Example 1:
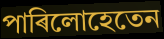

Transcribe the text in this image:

পাৰিলোহেতেন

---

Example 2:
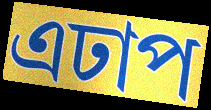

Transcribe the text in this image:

এঢাপ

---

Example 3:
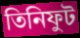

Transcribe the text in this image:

তিনিফুট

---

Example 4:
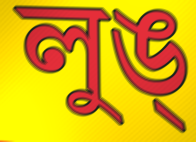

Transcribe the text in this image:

লুঙ্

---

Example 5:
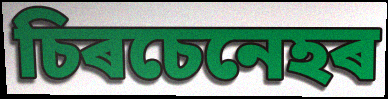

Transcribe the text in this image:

চিৰচেনেহৰ